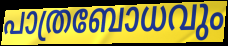
പാത്രബോധവും